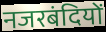
नजरबंदियों